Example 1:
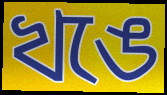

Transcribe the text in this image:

খঙে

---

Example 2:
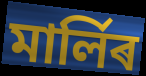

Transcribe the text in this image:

মাৰ্লিৰ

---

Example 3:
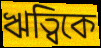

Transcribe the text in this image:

ঋত্বিকে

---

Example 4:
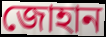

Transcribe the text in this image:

জোহান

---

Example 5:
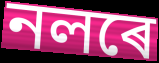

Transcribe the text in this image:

নলৰে